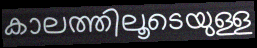
കാലത്തിലൂടെയുള്ള